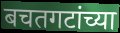
बचतगटांच्या